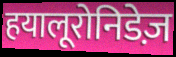
हयालूरोनिडेज़